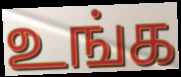
உங்க